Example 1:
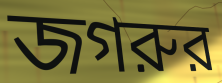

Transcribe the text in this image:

জগরুর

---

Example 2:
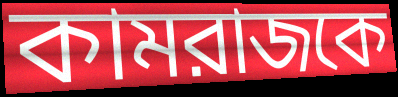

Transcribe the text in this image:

কামরাজকে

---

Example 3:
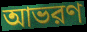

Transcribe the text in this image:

আভরণ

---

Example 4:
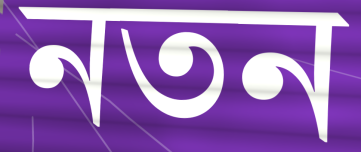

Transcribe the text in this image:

নতন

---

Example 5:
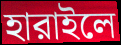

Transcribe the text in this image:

হারাইলে